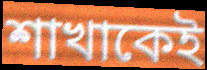
শাখাকেই